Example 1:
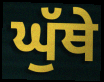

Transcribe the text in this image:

ਘੁੱਥੇ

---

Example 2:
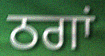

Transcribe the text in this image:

ਠਗਾਂ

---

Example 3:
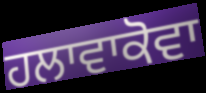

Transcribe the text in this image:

ਹਲਾਵਾਕੋਵਾ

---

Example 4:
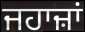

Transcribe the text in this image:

ਜਹਾਜ਼ਾਂ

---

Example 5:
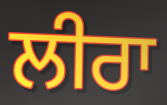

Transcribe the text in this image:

ਲੀਰਾ